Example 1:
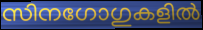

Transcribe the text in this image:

സിനഗോഗുകളിൽ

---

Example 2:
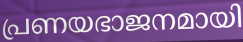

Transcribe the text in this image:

പ്രണയഭാജനമായി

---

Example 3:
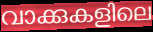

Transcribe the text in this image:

വാക്കുകളിലെ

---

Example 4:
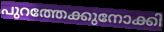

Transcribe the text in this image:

പുറത്തേക്കുനോക്കി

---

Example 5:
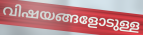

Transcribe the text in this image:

വിഷയങ്ങളോടുള്ള